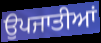
ਉਪਜਾਤੀਆਂ